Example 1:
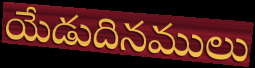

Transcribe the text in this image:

యేడుదినములు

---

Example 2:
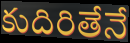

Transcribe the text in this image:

కుదిరితేనే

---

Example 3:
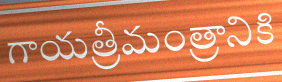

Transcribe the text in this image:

గాయత్రీమంత్రానికి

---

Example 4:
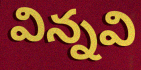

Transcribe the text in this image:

విన్నవి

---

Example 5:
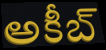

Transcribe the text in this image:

అకీబ్